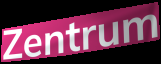
Zentrum